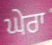
ਘੇਰਾ